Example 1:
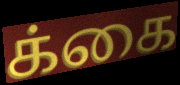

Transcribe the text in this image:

க்கை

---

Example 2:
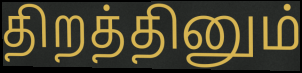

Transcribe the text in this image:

திறத்தினும்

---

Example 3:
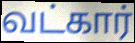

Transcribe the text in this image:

வட்கார்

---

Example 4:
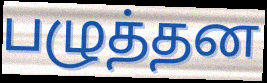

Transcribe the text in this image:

பழுத்தன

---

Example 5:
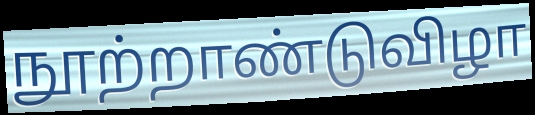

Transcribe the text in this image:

நூற்றாண்டுவிழா